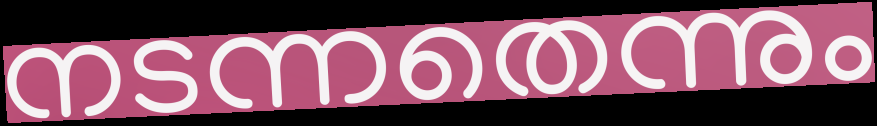
നടന്നതെന്നും